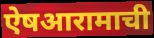
ऐषआरामाची